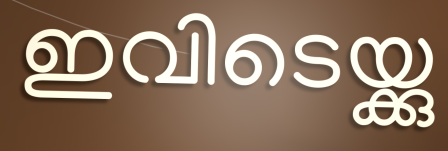
ഇവിടെയ്ക്കു